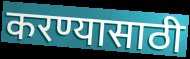
करण्यासाठी